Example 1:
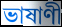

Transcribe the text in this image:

ভাষাণী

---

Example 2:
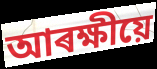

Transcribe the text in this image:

আৰক্ষীয়ে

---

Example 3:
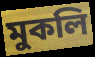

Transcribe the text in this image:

মুকলি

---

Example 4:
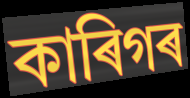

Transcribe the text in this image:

কাৰিগৰ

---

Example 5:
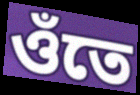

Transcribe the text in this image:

ওঁতে